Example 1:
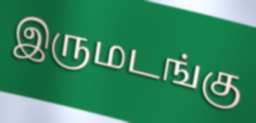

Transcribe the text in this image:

இருமடங்கு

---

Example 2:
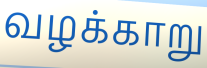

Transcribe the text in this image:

வழக்காறு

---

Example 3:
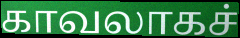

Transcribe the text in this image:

காவலாகச்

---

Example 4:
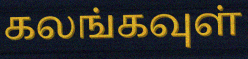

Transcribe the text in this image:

கலங்கவுள்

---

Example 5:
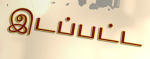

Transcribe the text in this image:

இடப்பட்ட